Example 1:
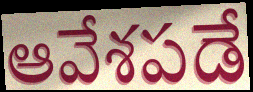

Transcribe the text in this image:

ఆవేశపడే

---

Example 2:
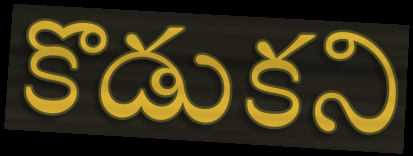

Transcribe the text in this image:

కొడుకని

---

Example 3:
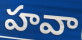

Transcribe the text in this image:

హవా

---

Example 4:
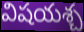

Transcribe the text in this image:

విషయశ్చ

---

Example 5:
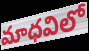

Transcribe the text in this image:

మాధవిలో